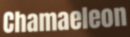
Chamaeleon